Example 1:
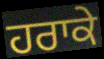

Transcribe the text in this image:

ਹਰਾਕੇ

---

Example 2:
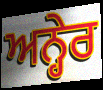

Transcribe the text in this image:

ਅਨ੍ਹੇਰ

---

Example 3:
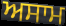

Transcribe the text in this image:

ਅਸਾਮ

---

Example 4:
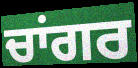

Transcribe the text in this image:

ਚਾਂਗਰ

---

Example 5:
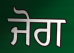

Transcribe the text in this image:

ਜੋਗ